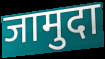
जामुदा